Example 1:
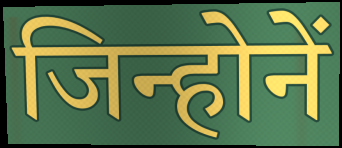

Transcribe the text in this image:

जिन्होनें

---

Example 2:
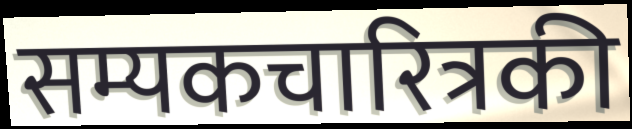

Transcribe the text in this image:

सम्यकचारित्रकी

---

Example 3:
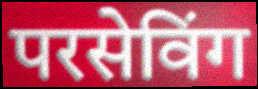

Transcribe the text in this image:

परसेविंग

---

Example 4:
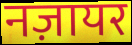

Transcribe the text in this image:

नज़ायर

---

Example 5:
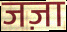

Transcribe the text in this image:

जज़ा